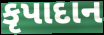
કૃપાદાન